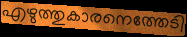
എഴുത്തുകാരനെത്തേടി